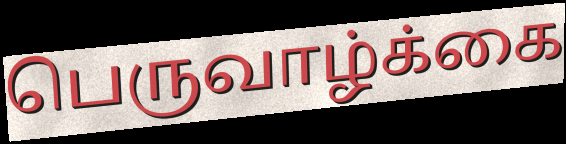
பெருவாழ்க்கை